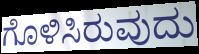
ಗೊಳಿಸಿರುವುದು